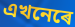
এখনেৰে